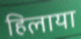
हिलाया